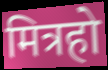
मित्रहो